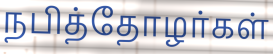
நபித்தோழர்கள்